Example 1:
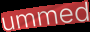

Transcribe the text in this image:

ummed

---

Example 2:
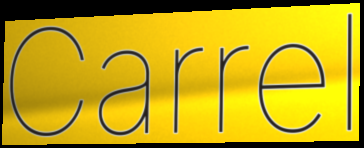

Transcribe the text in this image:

Carrel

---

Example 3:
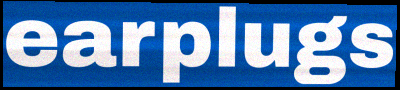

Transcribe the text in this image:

earplugs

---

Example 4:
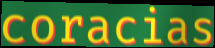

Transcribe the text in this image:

coracias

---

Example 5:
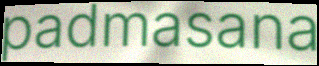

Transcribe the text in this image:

padmasana